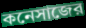
কনেসাজের